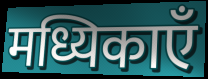
मध्यिकाएँ